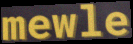
mewle